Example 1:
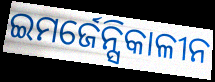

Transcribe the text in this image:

ଇମର୍ଜେନ୍ସିକାଳୀନ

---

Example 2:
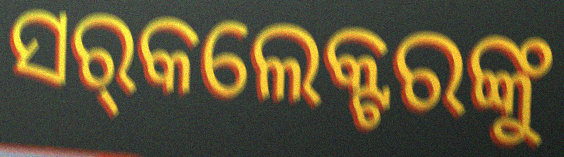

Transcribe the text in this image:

ସର୍‌କଲେକ୍ଟରଙ୍କୁ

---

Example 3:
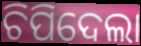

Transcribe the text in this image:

ଚିପିଦେଲା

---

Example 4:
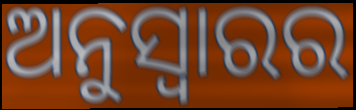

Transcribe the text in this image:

ଅନୁସ୍ଵାରର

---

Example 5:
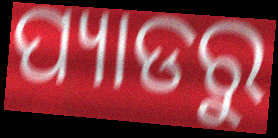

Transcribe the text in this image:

ପ୍ୟାଡରୁ